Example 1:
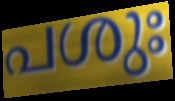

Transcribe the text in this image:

പശുഃ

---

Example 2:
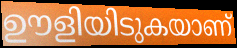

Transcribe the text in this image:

ഊളിയിടുകയാണ്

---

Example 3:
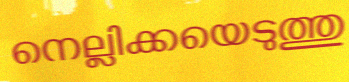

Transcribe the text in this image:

നെല്ലിക്കയെടുത്തു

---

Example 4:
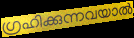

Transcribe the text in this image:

ഗ്രഹിക്കുന്നവയാൽ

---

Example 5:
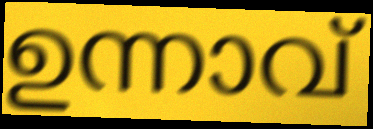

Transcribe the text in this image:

ഉന്നാവ്